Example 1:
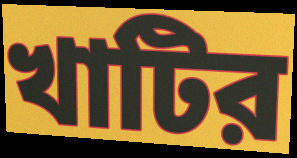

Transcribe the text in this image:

খাটির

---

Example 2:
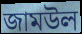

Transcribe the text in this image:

জামউল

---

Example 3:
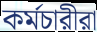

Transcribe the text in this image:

কর্মচারীরা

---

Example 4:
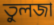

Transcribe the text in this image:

তুলজা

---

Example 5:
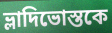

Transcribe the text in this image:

ভ্লাদিভোস্তকে